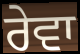
ਰੇਵਾ